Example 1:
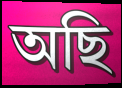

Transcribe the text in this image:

অছি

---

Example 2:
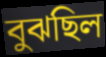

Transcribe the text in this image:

বুঝছিল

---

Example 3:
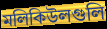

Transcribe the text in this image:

মলিকিউলগুলি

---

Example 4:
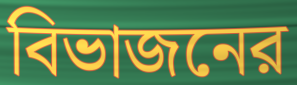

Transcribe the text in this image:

বিভাজনের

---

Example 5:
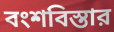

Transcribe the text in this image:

বংশবিস্তার